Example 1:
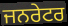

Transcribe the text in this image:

ਜਨਰੇਟਰ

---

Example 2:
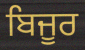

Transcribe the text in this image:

ਬਿਜੂਰ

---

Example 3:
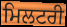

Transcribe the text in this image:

ਮਿਲਟਰੀ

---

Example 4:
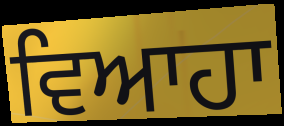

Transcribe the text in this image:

ਵਿਆਹਾ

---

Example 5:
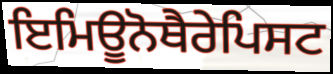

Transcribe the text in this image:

ਇਮਿਊਨੋਥੈਰੇਪਿਸਟ